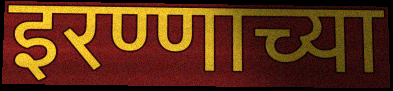
इरण्णाच्या